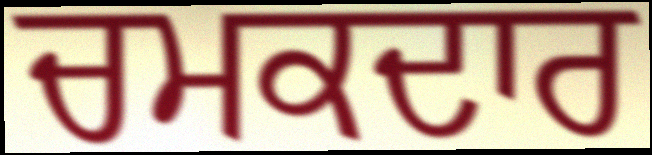
ਚਮਕਦਾਰ